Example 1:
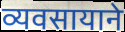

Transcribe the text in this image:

व्यवसायाने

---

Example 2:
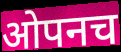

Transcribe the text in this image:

ओपनच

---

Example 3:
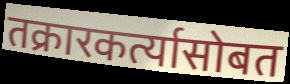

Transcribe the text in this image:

तक्रारकर्त्यासोबत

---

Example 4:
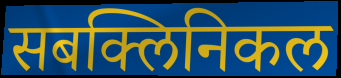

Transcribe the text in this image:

सबक्लिनिकल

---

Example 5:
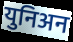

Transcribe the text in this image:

युनिअन